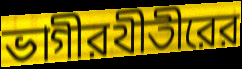
ভাগীরথীতীরের